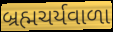
બ્રહ્મચર્યવાળા